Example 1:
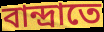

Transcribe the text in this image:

বান্দ্রাতে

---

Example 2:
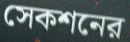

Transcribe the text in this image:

সেকশনের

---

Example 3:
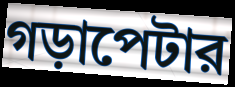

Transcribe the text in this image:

গড়াপেটার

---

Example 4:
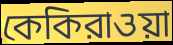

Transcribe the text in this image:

কেকিরাওয়া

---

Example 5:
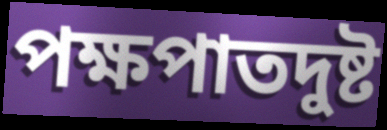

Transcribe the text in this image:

পক্ষপাতদুষ্ট